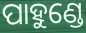
ପାହୁଣ୍ଡେ